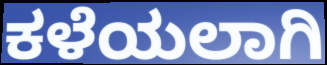
ಕಳೆಯಲಾಗಿ